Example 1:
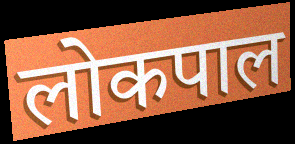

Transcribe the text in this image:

लोकपाल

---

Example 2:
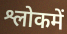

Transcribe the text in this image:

श्लोकमें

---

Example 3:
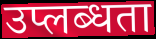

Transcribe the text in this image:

उप्लब्धता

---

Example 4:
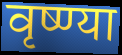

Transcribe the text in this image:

वृष्ण्या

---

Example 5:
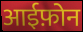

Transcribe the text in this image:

आईफ़ोन